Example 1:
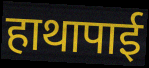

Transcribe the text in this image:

हाथापाई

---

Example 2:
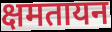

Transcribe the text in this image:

क्षमतायन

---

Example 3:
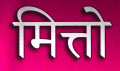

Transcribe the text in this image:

मित्तो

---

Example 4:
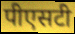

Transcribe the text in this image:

पीएसटी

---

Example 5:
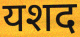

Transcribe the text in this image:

यशद